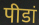
पीडां